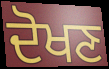
ਦੋਖਣ